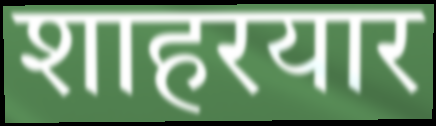
शाहरयार